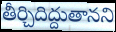
తీర్చిదిద్దుతానని